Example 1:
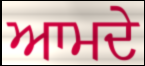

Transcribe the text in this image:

ਆਮਦੇ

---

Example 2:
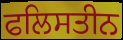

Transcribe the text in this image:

ਫਲਿਸਤੀਨ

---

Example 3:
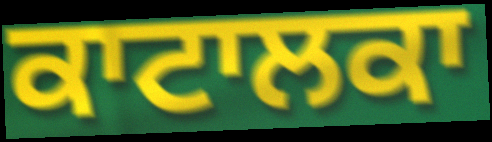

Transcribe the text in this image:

ਕਾਟਾਲਕਾ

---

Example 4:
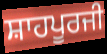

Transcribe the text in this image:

ਸ਼ਾਹਪੂਰਜੀ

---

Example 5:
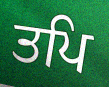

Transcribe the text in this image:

ਤਪਿ